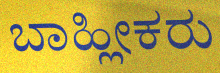
ಬಾಹ್ಲೀಕರು